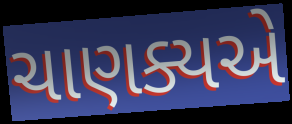
ચાણક્યએ